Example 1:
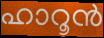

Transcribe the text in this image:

ഹാറൂൻ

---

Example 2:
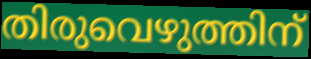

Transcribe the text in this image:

തിരുവെഴുത്തിന്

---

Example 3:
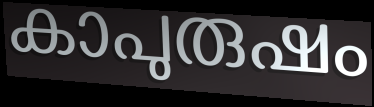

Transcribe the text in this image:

കാപുരുഷം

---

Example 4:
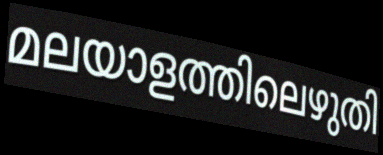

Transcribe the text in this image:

മലയാളത്തിലെഴുതി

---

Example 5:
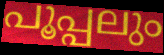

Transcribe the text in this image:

പൂപ്പലും